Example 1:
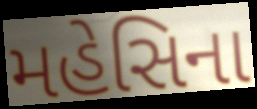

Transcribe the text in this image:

મહેસિના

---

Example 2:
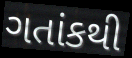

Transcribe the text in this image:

ગતાંકથી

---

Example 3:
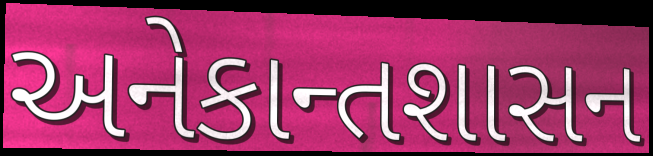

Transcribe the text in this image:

અનેકાન્તશાસન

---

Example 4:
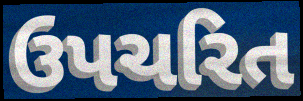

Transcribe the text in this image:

ઉપચરિત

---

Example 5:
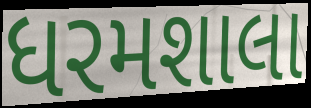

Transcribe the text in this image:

ધરમશાલા